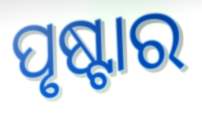
ପୃଷ୍ଟାର